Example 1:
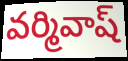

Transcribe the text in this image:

వర్మివాష్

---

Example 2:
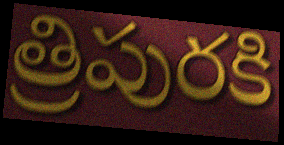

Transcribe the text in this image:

త్రిపురకి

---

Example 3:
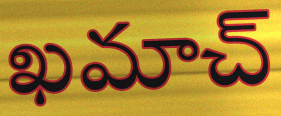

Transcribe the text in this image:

ఖమాచ్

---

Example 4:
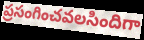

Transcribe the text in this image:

ప్రసంగించవలసిందిగా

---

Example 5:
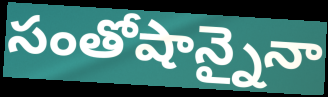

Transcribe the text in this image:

సంతోషాన్నైనా